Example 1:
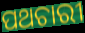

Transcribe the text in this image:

ପଥଚାରୀ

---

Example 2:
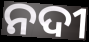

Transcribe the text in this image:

ନଦୀ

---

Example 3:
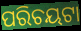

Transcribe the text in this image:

ପରିଚୟଟା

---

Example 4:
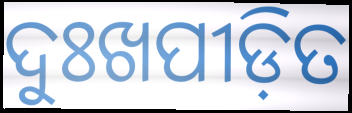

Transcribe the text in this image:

ଦୁଃଖପୀଡ଼ିତ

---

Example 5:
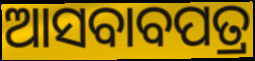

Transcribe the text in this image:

ଆସବାବପତ୍ର